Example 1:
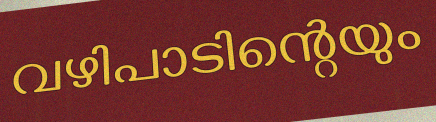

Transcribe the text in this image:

വഴിപാടിന്റെയും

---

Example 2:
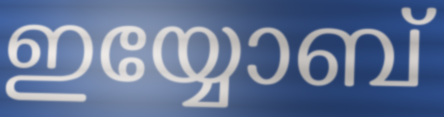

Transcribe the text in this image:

ഇയ്യോബ്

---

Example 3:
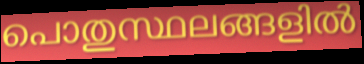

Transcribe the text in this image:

പൊതുസ്ഥലങ്ങളിൽ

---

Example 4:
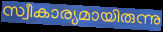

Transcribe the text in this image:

സ്വീകാര്യമായിരുന്നു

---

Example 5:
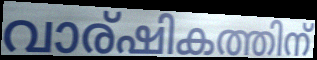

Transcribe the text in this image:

വാര്ഷികത്തിന്